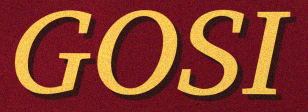
GOSI